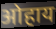
ओहाय